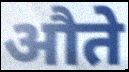
औते